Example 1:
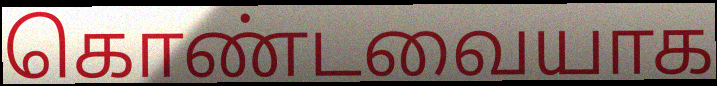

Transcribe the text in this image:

கொண்டவையாக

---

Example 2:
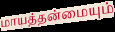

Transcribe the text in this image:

மாயத்தன்மையும்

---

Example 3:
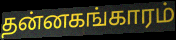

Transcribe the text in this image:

தன்னகங்காரம்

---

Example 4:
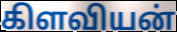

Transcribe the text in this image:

கிளவியன்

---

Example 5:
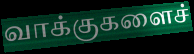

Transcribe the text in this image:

வாக்குகளைச்